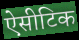
ऐसीटिक